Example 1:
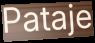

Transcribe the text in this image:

Pataje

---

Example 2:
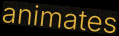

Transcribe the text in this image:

animates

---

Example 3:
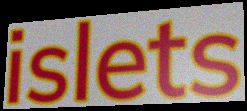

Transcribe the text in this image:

islets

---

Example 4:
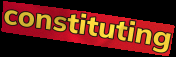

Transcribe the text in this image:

constituting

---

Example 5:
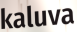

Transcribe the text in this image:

kaluva